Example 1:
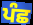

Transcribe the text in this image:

ਪੰਛ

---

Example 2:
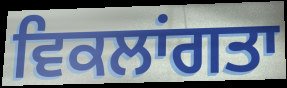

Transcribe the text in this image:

ਵਿਕਲਾਂਗਤਾ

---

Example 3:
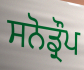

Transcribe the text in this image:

ਸਨੋਡ੍ਰੌਪ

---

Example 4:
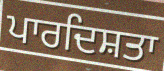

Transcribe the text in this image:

ਪਾਰਦਿਸ਼ਤਾ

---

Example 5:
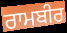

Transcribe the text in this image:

ਰਾਮਬੀਰ